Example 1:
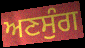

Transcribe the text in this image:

ਅਣਸੁੰਗ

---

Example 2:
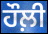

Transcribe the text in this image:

ਹੌਲ਼ੀ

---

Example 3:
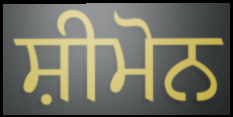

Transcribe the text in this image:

ਸ਼ੀਮੋਨ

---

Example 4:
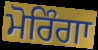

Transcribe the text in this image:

ਮੋਰਿੰਗਾ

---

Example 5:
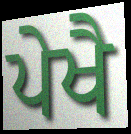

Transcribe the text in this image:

ਪੇਖੈ